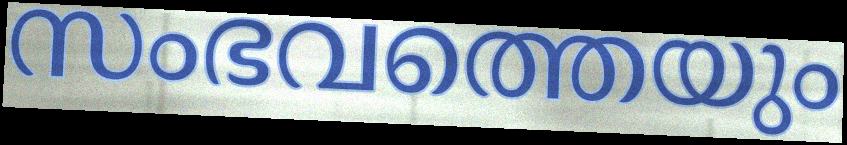
സംഭവത്തെയും